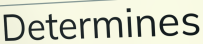
Determines